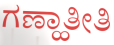
ಗಣ್ಹಾತೀತಿ